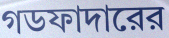
গডফাদারের